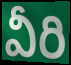
వీరి